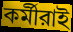
কর্মীরাই